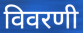
विवरणी